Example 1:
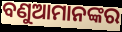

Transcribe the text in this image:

ବଣୁଆମାନଙ୍କର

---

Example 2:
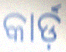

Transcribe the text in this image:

କାର୍ଡ଼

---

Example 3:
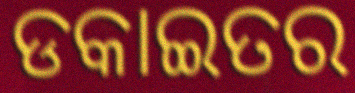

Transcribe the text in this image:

ଡକାଇତର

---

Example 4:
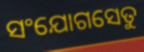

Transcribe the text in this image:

ସଂଯୋଗସେତୁ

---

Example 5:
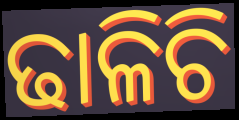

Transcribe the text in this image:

ଢାଳିଚି